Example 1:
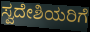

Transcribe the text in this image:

ಸ್ವದೇಶಿಯರಿಗೆ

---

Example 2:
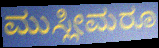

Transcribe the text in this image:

ಮುಸ್ಲೀಮರೂ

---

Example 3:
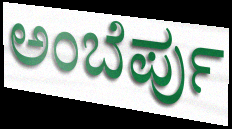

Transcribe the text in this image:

ಅಂಬೆರ್ಪು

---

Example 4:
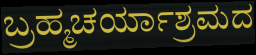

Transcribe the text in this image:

ಬ್ರಹ್ಮಚರ್ಯಾಶ್ರಮದ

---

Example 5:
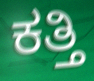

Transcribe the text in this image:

ಕತ್ತಿ